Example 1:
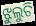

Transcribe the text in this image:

ଝୁଲୁଚି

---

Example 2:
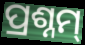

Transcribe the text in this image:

ପ୍ରଶ୍ନମ୍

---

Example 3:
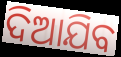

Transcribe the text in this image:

ଦିଆଯିବ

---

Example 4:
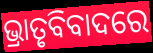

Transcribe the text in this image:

ଭ୍ରାତୃବିବାଦରେ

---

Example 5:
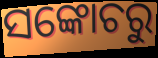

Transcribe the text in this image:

ସଙ୍କୋଚରୁ